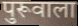
पुरूवाला